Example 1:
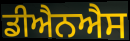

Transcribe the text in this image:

ਡੀਐਨਐਸ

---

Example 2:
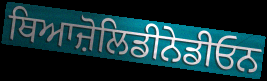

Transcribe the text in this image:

ਥਿਆਜ਼ੋਲਿਡੀਨੇਡੀਓਨ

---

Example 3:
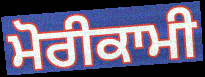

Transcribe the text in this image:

ਮੋਰੀਕਾਮੀ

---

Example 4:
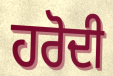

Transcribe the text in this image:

ਹਰੋਦੀ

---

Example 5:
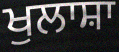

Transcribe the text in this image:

ਖੁਲਾਸ਼ਾ